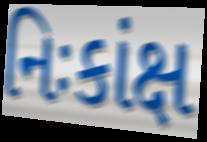
નિઃકાંક્ષ